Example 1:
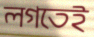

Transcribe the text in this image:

লগতেই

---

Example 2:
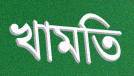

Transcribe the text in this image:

খামতি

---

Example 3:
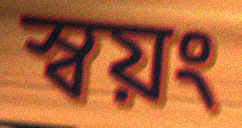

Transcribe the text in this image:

স্বয়ং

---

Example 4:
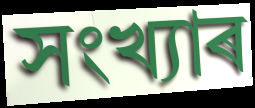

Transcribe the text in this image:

সংখ্যাৰ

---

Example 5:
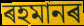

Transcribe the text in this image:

ৰহমানৰ